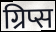
ग्रिप्स